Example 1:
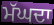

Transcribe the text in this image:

ਮੱਘਦਾ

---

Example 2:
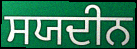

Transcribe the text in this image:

ਸਯਦੀਨ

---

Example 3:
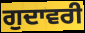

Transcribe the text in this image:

ਗੁਦਾਵਰੀ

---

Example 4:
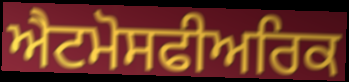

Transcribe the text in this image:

ਐਟਮੋਸਫੀਅਰਿਕ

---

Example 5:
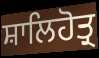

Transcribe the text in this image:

ਸ਼ਾਲਿਹੋਤ੍ਰ